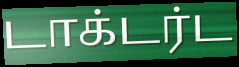
டாக்டர்ட